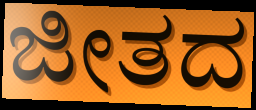
ಜೀತದ